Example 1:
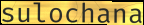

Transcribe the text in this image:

sulochana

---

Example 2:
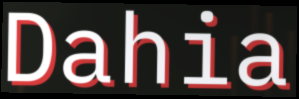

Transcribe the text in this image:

Dahia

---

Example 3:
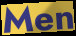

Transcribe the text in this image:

Men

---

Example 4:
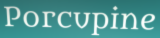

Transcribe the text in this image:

Porcupine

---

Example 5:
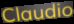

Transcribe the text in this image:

Claudio